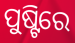
ପୁଷ୍ଟିରେ